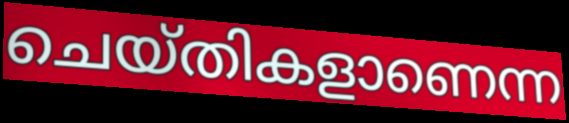
ചെയ്തികളാണെന്ന